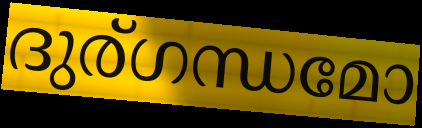
ദുര്ഗന്ധമോ